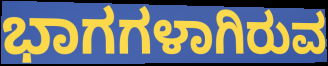
ಭಾಗಗಳಾಗಿರುವ